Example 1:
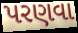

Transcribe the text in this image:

પરણવા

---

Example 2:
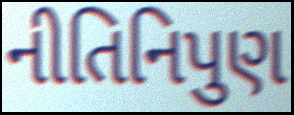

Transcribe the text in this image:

નીતિનિપુણ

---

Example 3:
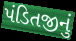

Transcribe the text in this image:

પંડિતજીનું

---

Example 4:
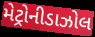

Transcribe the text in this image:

મેટ્રોનીડાઝોલ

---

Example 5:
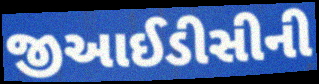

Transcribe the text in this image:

જીઆઈડીસીની